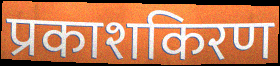
प्रकाशकिरण